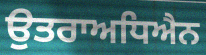
ਉਤਰਾਅਧਿਐਨ